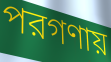
পরগণায়